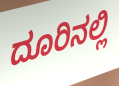
ದೂರಿನಲ್ಲಿ